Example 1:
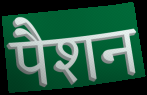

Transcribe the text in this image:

पैशन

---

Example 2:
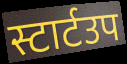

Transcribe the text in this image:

स्टार्टउप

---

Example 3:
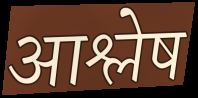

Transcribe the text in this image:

आश्लेष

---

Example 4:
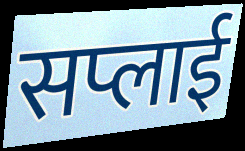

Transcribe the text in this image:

सप्‍लाई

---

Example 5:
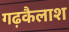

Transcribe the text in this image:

गढ़कैलाश